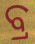
ବ୍ର